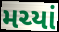
મચ્યાં